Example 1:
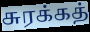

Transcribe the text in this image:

சுரக்கத்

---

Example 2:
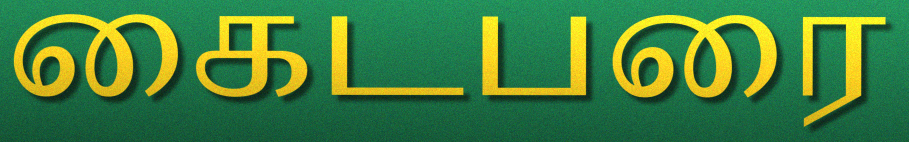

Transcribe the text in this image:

கைடபரை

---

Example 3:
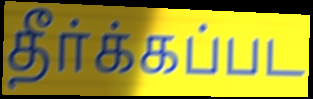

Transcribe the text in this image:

தீர்க்கப்பட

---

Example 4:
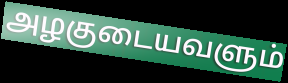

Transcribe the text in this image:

அழகுடையவளும்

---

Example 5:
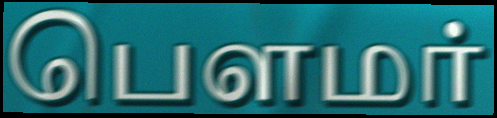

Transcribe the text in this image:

பௌமர்